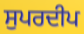
ਸੁਪਰਦੀਪ